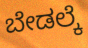
ಬೇಡಲ್ಕೆ